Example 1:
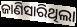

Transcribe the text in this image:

ଜାଣିସାରିଥିଲା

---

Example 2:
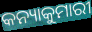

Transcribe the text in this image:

କନ୍ୟାକୁମାରୀ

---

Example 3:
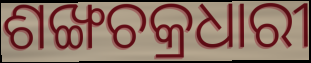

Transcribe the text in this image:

ଶଙ୍ଖଚକ୍ରଧାରୀ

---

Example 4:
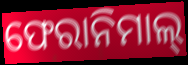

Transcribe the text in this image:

ଫେରାନିମାଲ୍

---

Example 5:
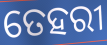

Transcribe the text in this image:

ତେହରୀ